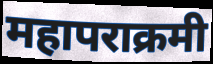
महापराक्रमी